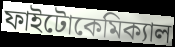
ফাইটোকেমিক্যাল